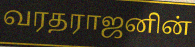
வரதராஜனின்